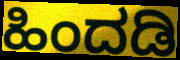
ಹಿಂದಡಿ